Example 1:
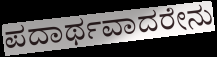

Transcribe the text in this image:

ಪದಾರ್ಥವಾದರೇನು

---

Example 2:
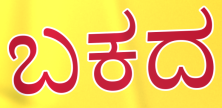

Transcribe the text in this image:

ಬಕದ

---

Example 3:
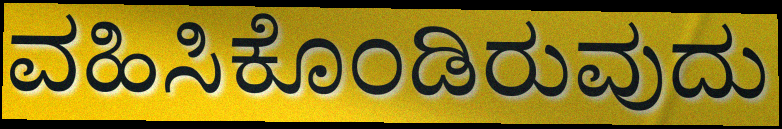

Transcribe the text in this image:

ವಹಿಸಿಕೊಂಡಿರುವುದು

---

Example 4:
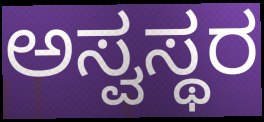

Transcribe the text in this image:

ಅಸ್ವಸ್ಥರ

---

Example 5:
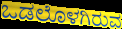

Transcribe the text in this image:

ಒಡಲೊಳಗಿರುವ